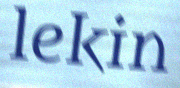
lekin